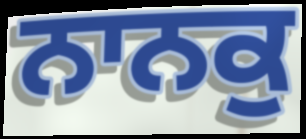
ਨਾਨਕੁ